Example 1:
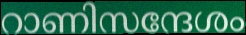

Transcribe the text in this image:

റാണിസന്ദേശം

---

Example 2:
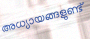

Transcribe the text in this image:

അധ്യായങ്ങളുണ്ട്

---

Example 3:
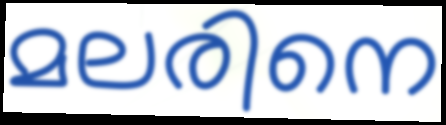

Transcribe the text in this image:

മലരിനെ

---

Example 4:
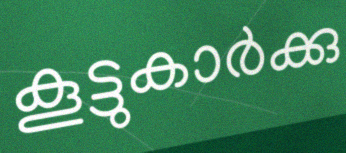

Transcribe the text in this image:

കൂട്ടുകാർക്കു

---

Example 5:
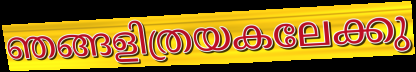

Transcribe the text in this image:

ഞങ്ങളിത്രയകലേക്കു